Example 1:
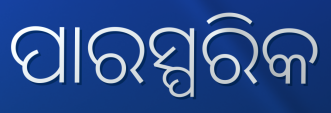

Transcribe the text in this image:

ପାରସ୍ପରିକ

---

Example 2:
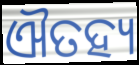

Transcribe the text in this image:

ଐତହ୍ୟ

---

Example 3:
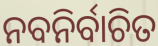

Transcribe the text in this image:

ନବନିର୍ବାଚିତ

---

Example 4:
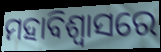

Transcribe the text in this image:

ମହାବିଶ୍ୱାସରେ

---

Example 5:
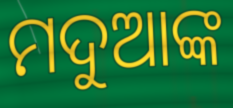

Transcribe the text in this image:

ମଦୁଆଙ୍କ